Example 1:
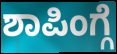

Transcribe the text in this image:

ಶಾಪಿಂಗ್ಗೆ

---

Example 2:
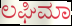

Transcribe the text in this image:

ಲಘಿಮಾ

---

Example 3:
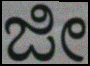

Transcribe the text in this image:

ಜೀ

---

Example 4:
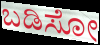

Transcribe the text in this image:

ಬಡಿಸೋ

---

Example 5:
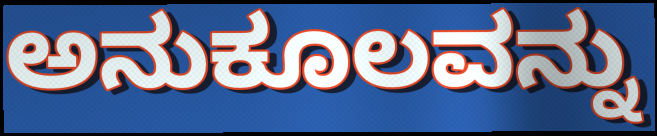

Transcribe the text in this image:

ಅನುಕೂಲವನ್ನು